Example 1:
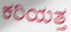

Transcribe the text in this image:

ಕರಿಯತ್ತ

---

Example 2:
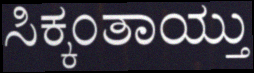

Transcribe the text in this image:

ಸಿಕ್ಕಂತಾಯ್ತು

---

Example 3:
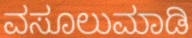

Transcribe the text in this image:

ವಸೂಲುಮಾಡಿ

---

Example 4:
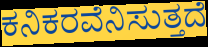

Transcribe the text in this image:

ಕನಿಕರವೆನಿಸುತ್ತದೆ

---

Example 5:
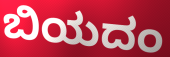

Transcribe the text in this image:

ಬಿಯದಂ